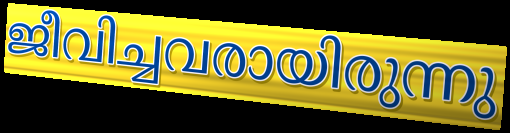
ജീവിച്ചവരായിരുന്നു